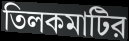
তিলকমাটির